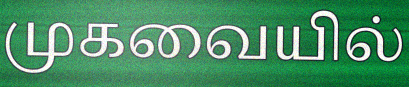
முகவையில்